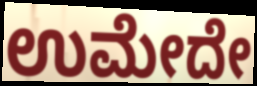
ಉಮೇದೇ